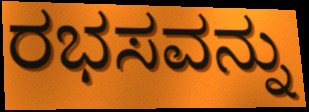
ರಭಸವನ್ನು